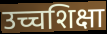
उच्चशिक्षा